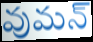
వుమన్